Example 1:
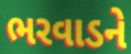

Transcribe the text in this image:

ભરવાડને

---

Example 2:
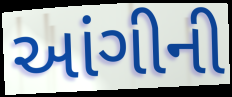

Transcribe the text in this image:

આંગીની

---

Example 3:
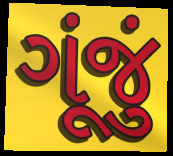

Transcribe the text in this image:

ગૂંજું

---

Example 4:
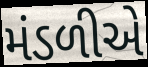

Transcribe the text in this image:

મંડળીએ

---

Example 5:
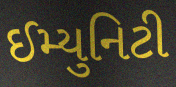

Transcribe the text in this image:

ઈમ્યુનિટી